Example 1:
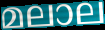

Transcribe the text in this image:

മലാല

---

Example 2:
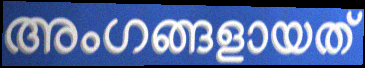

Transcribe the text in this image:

അംഗങ്ങളായത്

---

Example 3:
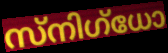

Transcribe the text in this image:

സ്നിഗ്ധോ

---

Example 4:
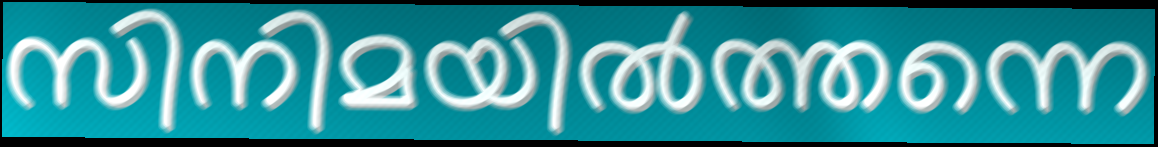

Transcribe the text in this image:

സിനിമയിൽത്തന്നെ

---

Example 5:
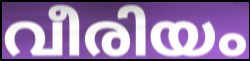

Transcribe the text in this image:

വീരിയം